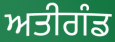
ਅਤੀਗੰਡ